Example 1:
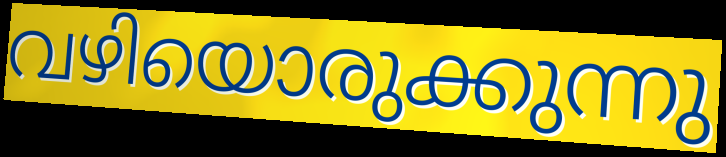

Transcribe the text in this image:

വഴിയൊരുക്കുന്നു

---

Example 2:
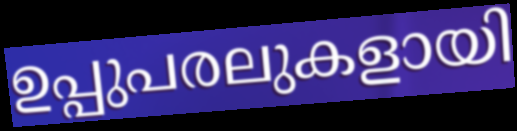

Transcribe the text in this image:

ഉപ്പുപരലുകളായി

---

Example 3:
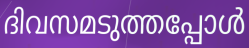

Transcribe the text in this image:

ദിവസമടുത്തപ്പോൾ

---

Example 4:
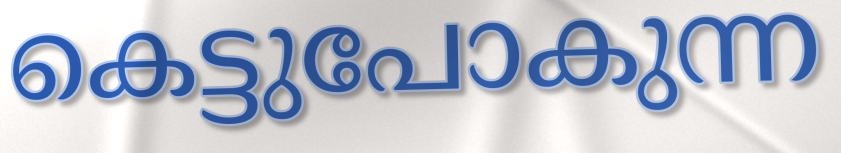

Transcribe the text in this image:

കെട്ടുപോകുന്ന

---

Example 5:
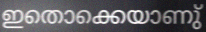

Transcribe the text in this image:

ഇതൊക്കെയാണു്